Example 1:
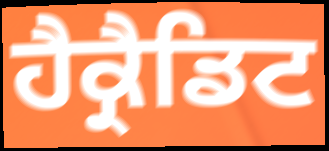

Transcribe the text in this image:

ਹੈਕ੍ਰੈਡਿਟ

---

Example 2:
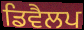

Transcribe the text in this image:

ਡਿਵੈਲਪ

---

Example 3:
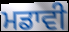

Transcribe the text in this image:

ਮਡਾਵੀ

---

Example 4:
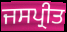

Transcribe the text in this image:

ਜਸਪ੍ਰੀਤ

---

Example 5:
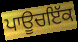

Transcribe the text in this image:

ਪਾਊਚਇੱਕ